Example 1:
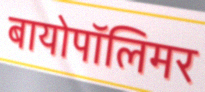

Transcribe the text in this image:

बायोपॉलिमर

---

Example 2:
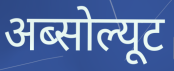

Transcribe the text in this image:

अब्सोल्यूट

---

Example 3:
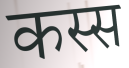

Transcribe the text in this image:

कस्स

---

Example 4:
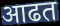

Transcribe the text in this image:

आढत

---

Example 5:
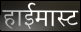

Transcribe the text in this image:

हाईमास्ट